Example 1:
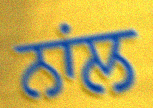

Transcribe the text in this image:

ਨਾਂਲ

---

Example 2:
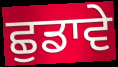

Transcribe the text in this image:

ਛੁਡਾਵੇ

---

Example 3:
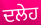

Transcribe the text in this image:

ਦਲੇਹ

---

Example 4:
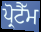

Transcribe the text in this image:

ਪ੍ਰੋਟੈੱਮ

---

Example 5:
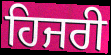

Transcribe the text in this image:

ਹਿਜਰੀ